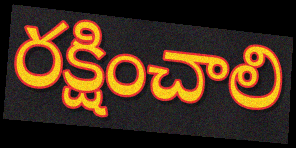
రక్షించాలి